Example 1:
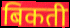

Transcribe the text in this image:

बिकती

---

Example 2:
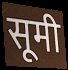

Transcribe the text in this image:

सूमी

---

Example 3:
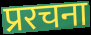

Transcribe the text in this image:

प्ररचना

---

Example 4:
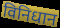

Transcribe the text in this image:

विनिधान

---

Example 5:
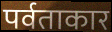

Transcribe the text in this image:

पर्वताकार